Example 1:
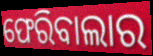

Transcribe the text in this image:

ଫେରିବାଲାର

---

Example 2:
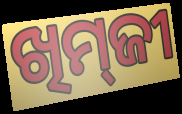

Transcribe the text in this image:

ଖିମ୍‌ଜୀ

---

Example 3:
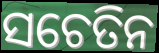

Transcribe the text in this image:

ସଚେତିନ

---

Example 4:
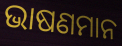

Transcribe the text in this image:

ଭାଷଣମାନ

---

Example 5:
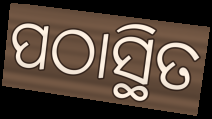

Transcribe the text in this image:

ପଠାସ୍ଥିତ